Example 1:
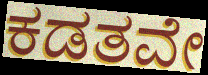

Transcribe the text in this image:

ಕಡತವೇ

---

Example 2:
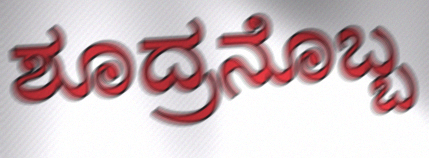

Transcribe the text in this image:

ಶೂದ್ರನೊಬ್ಬ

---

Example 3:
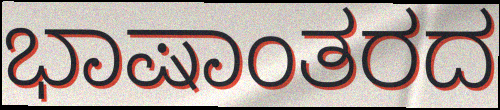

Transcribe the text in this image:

ಭಾಷಾಂತರದ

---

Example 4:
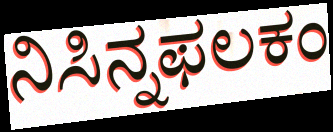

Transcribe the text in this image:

ನಿಸಿನ್ನಫಲಕಂ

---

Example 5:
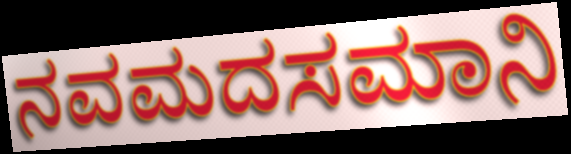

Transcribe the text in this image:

ನವಮದಸಮಾನಿ